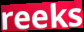
reeks